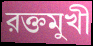
রক্তমুখী